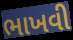
ભાખવી